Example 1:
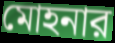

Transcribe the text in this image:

মোহনার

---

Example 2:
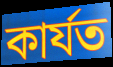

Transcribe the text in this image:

কার্যত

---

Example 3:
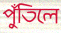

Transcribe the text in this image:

পুঁতিলে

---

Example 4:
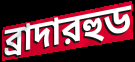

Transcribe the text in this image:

ব্রাদারহুড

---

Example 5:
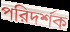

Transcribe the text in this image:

পরিদর্শক